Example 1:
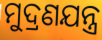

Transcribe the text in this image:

ମୁଦ୍ରଣଯନ୍ତ୍ର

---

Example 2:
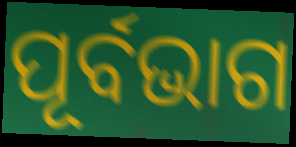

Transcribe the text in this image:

ପୂର୍ବଭାଗ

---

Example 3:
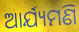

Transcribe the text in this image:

ଆର୍ଯ୍ୟମଣି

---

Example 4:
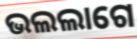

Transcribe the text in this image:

ଭଲଲାଗେ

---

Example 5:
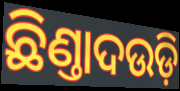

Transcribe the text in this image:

ଛିଣ୍ତାଦଉଡ଼ି